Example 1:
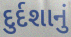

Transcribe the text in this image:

દુર્દશાનું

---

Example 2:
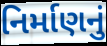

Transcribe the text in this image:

નિર્માણનું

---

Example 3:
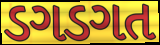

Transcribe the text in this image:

ડગડગત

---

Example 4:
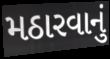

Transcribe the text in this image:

મઠારવાનું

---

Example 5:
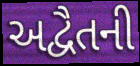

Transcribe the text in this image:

અદ્વૈતની